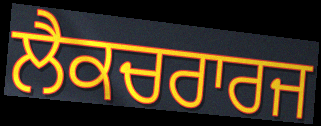
ਲੈਕਚਰਾਰਜ